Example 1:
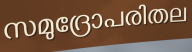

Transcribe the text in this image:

സമുദ്രോപരിതല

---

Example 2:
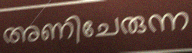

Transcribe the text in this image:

അണിചേരുന്ന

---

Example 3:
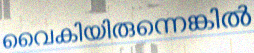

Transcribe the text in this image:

വൈകിയിരുന്നെങ്കിൽ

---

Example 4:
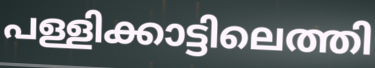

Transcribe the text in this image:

പള്ളിക്കാട്ടിലെത്തി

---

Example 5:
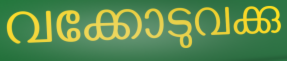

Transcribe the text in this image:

വക്കോടുവക്കു